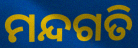
ମନ୍ଦଗତି